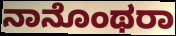
ನಾನೊಂಥರಾ